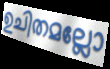
ഉചിതമല്ലോ